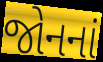
જોનનાં